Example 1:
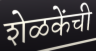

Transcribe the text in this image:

शेळकेंची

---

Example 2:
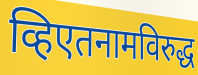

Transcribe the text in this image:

व्हिएतनामविरुद्ध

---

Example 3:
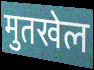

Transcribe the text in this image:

मुतखेल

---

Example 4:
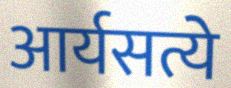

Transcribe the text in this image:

आर्यसत्ये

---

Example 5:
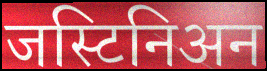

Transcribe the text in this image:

जस्टिनिअन